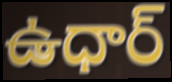
ఉధార్